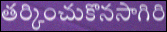
తర్కించుకొనసాగిరి